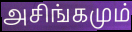
அசிங்கமும்